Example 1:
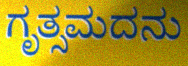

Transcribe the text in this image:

ಗೃತ್ಸಮದನು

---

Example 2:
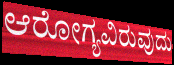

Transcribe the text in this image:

ಆರೋಗ್ಯವಿರುವುದು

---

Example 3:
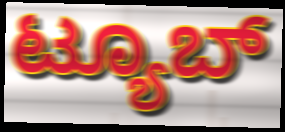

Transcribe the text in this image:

ಟ್ಯೂಬ್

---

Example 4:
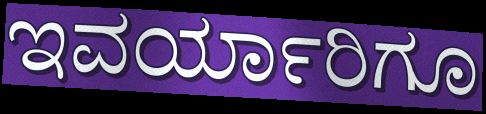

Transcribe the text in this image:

ಇವರ್ಯಾರಿಗೂ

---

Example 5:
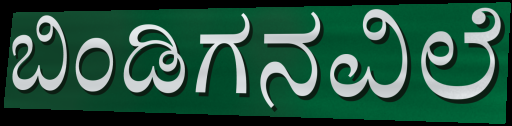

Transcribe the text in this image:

ಬಿಂಡಿಗನವಿಲೆ